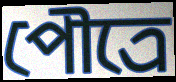
পৌত্রে